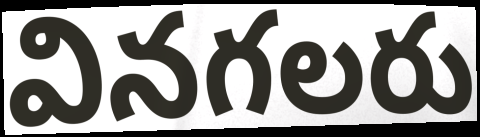
వినగలరు